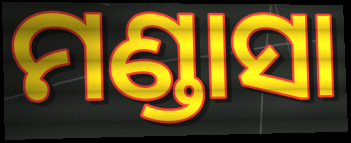
ମଣ୍ଡାସା